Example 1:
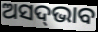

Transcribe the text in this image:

ଅସଦ୍‌ଭାବ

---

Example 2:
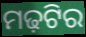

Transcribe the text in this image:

ମଢ଼ଟିର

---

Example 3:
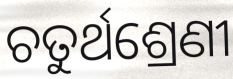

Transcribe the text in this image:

ଚତୁର୍ଥଶ୍ରେଣୀ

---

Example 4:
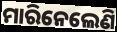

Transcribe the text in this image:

ମାରିନେଲେଣି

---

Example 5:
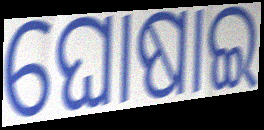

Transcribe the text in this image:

ଘୋଷାଇ